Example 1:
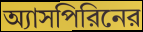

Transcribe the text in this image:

অ্যাসপিরিনের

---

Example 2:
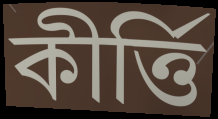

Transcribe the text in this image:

কীর্ত্তি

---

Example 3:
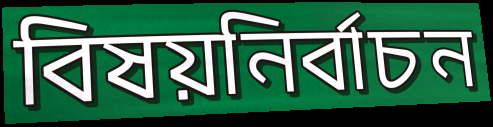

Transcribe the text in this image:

বিষয়নির্বাচন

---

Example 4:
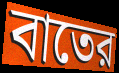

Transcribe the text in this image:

বাতের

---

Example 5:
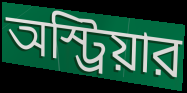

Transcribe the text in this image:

অস্ট্রিয়ার